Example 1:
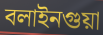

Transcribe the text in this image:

বলাইনগুয়া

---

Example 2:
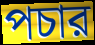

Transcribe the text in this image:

পচার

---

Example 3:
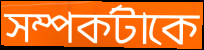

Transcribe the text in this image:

সম্পর্কটাকে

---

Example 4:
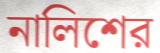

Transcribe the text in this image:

নালিশের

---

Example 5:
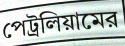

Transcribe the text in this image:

পেট্রলিয়ামের